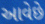
આવેછે